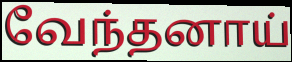
வேந்தனாய்